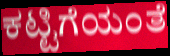
ಕಟ್ಟಿಗೆಯಂತೆ